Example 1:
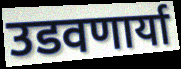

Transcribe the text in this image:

उडवणार्या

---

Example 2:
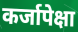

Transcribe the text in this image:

कर्जापेक्षा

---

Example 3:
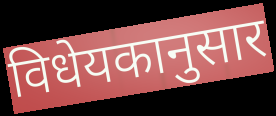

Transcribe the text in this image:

विधेयकानुसार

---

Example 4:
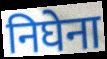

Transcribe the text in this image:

निघेना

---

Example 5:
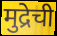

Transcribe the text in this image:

मुद्रेची